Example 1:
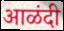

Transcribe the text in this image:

आळंदी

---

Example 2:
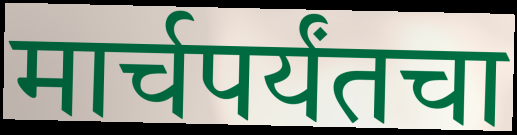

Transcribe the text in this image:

मार्चपर्यंतचा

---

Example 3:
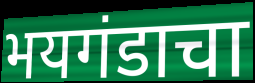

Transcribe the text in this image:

भयगंडाचा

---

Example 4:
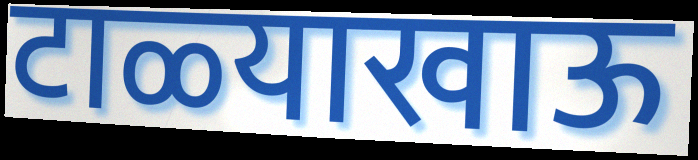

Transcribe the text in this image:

टाळ्याखाऊ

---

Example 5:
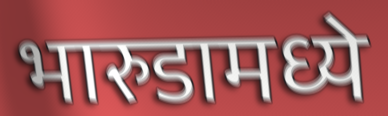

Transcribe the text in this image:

भारुडामध्ये